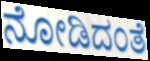
ನೋಡಿದಂತೆ